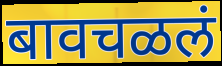
बावचळलं